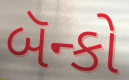
બૅન્કો